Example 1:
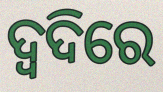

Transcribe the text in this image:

ଦ୍ଵଦିରେ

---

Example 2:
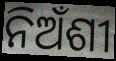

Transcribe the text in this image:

ନିଅଁଶୀ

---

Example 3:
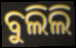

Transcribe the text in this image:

ବୁଲିଲି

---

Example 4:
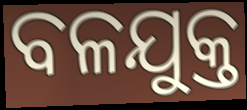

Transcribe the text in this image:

ବଳଯୁକ୍ତ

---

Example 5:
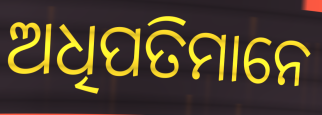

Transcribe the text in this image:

ଅଧିପତିମାନେ